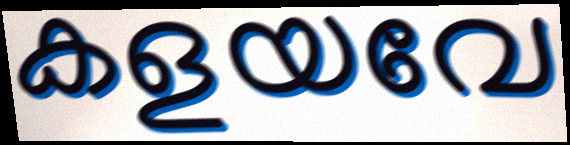
കളയവേ